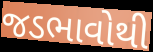
જડભાવોથી